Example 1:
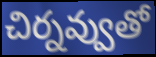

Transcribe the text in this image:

చిర్నవ్వుతో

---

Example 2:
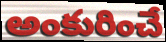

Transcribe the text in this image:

అంకురించే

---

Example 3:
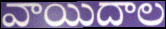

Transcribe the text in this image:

వాయిదాల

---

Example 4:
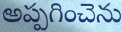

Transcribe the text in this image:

అప్పగించెను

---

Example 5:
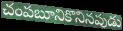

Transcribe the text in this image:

చంపబూనికొనినపుడు